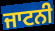
ਜਾਟਨੀ